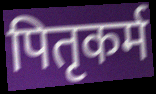
पितृकर्म